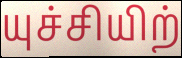
யுச்சியிற்